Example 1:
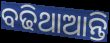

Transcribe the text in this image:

ବଢିଥାଆନ୍ତି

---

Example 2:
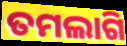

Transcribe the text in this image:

ତମଲାଗି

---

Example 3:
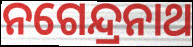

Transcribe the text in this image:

ନଗେନ୍ଦ୍ରନାଥ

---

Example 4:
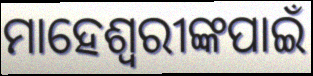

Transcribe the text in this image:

ମାହେଶ୍ୱରୀଙ୍କପାଇଁ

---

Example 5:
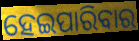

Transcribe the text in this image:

ହେଇପାରିବାର